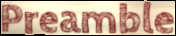
Preamble